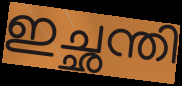
ഇച്ഛന്തി